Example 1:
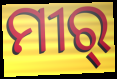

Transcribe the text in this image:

ମୀର୍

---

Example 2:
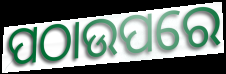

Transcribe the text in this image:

ପଠାଉପରେ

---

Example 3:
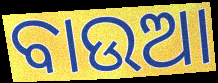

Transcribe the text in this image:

ବାଉଆ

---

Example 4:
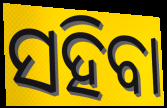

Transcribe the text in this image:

ସହିବା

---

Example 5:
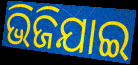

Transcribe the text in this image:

ଭିଜିଯାଇ